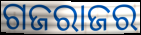
ଗଜରାଜର